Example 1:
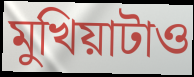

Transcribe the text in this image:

মুখিয়াটাও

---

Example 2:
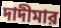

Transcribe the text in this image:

দাদীমার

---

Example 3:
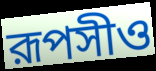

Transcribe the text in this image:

রূপসীও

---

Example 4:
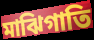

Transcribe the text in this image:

মাঝিগাতি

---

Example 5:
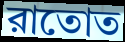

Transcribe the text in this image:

রাতোত